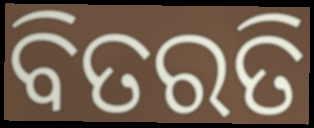
ବିତରତି